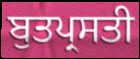
ਬੁਤਪ੍ਰਸਤੀ